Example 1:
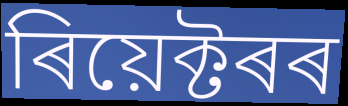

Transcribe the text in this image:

ৰিয়েক্টৰৰ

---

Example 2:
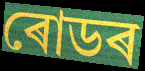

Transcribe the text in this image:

ৰোডৰ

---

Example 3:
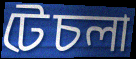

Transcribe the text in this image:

টেচলা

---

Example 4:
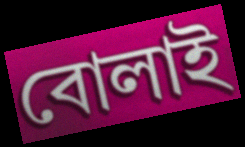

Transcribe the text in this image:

বোলাই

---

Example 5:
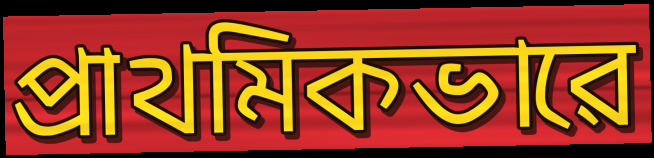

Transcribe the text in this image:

প্ৰাথমিকভাৱে